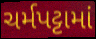
ચર્મપટ્ટામાં